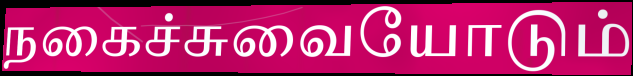
நகைச்சுவையோடும்